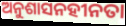
ଅନୁଶାସନହୀନତା